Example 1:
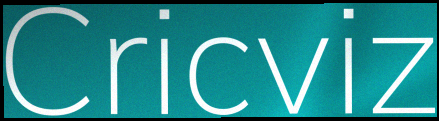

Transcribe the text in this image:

Cricviz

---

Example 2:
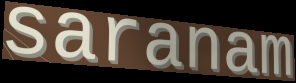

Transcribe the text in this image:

saranam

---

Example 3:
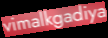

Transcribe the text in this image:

vimalkgadiya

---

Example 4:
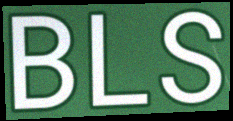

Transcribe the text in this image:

BLS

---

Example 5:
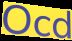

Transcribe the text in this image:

Ocd